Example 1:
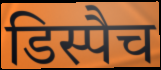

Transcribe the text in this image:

डिस्पैच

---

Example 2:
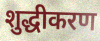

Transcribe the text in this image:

शुद्धीकरण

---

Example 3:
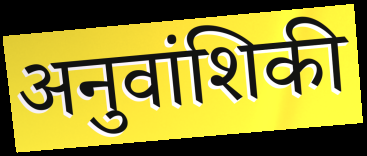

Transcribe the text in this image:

अनुवांशिकी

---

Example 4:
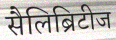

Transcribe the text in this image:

सैलिब्रिटीज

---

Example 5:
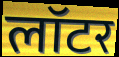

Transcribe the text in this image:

लॉटर